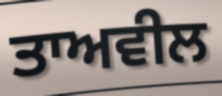
ਤਾਅਵੀਲ